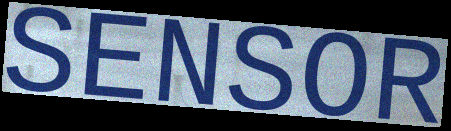
SENSOR